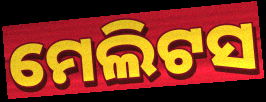
ମେଲିଟସ